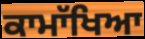
ਕਾਮਾੱਖਿਆ